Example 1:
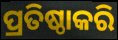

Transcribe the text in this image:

ପ୍ରତିଷ୍ଠାକରି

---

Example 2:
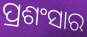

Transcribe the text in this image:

ପ୍ରଶଂସାର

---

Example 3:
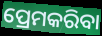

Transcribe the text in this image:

ପ୍ରେମକରିବା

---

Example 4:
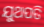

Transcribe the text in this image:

ଯୁଥପତି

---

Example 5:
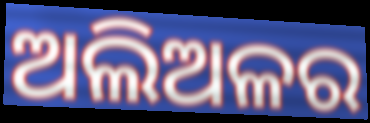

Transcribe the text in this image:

ଅଲିଅଳର